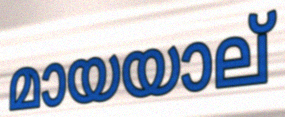
മായയാല്